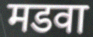
मडवा